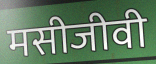
मसीजीवी